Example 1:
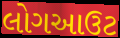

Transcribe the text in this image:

લોગઆઉટ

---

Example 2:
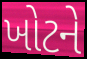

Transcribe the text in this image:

ખોટને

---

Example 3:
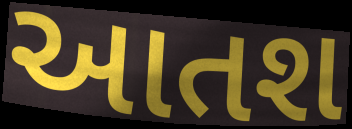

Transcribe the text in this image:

આતશ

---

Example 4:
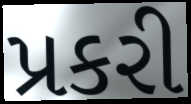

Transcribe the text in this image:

પ્રકરી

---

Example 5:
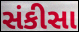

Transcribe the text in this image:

સંકીસા